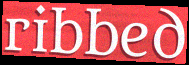
ribbed